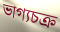
ভাগ্যচক্র